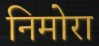
निमोरा